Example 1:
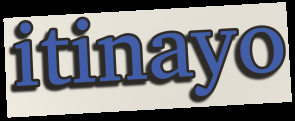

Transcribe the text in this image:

itinayo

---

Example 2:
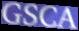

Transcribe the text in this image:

GSCA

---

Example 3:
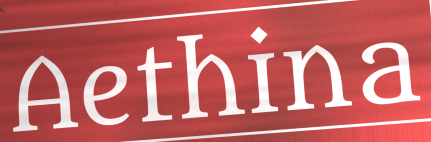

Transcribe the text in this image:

Aethina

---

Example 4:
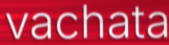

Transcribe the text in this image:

vachata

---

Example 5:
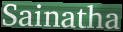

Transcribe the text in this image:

Sainatha